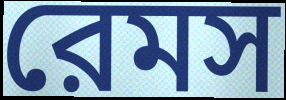
রেমস